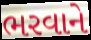
ભરવાને